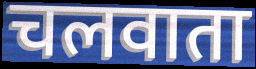
चलवाता